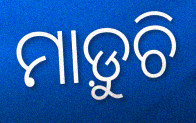
ମାଡ଼ୁଚି